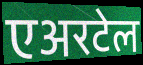
एअरटेल